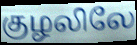
குழலிலே